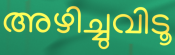
അഴിച്ചുവിടൂ